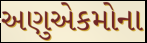
અણુએકમોના